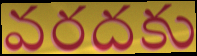
వరదకు